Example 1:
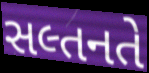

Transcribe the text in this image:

સલ્તનતે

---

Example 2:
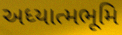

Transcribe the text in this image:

અધ્યાત્મભૂમિ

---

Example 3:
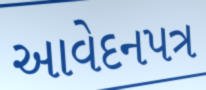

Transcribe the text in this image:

આવેદનપત્ર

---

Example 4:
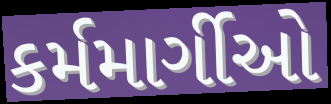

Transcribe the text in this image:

કર્મમાર્ગીઓ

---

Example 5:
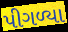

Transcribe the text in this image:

પીગળ્યા